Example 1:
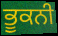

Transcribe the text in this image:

ਭੂਕਨੀ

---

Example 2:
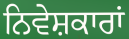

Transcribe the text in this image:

ਨਿਵੇਸ਼ਕਾਰਾਂ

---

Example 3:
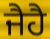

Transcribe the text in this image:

ਜੈਹੈ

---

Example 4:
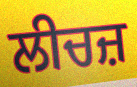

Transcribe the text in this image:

ਲੀਚਜ਼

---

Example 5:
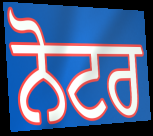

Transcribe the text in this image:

ਨੋਟਰ